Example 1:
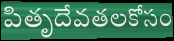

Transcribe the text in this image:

పితృదేవతలకోసం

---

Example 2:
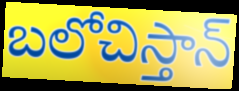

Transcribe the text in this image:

బలోచిస్తాన్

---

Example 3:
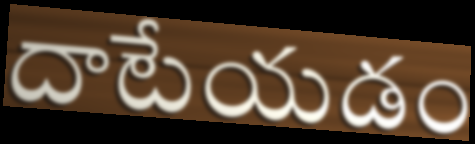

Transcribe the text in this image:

దాటేయడం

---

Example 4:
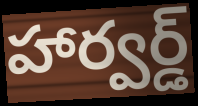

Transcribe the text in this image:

హార్వర్డ్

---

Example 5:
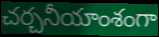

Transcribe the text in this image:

చర్చనీయాంశంగా